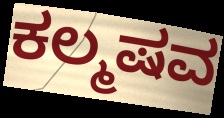
ಕಲ್ಮಷವ